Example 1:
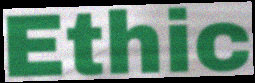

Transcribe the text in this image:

Ethic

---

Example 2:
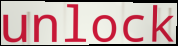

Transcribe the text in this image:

unlock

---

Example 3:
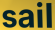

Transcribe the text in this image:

sail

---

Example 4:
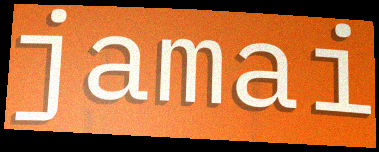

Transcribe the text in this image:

jamai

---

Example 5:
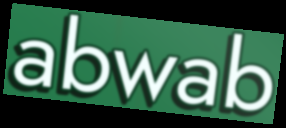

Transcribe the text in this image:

abwab